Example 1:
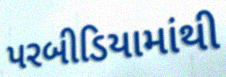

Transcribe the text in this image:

પરબીડિયામાંથી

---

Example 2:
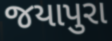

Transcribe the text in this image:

જયાપુરા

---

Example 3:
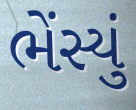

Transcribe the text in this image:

ભેંસ્યું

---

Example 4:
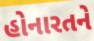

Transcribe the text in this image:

હોનારતને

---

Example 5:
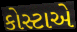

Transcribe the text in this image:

કોસ્ટાએ